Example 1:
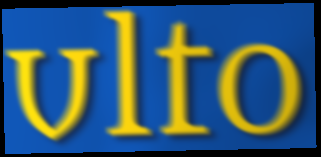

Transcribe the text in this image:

ulto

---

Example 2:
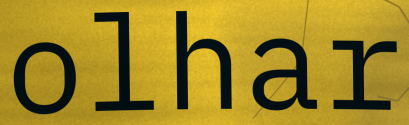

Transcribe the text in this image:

olhar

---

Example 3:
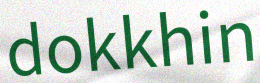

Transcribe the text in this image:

dokkhin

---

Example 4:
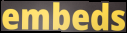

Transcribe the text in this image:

embeds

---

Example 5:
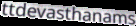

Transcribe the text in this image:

ttdevasthanams